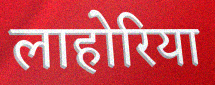
लाहोरिया